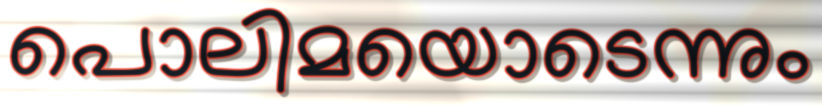
പൊലിമയൊടെന്നും